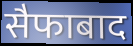
सैफाबाद